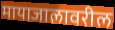
मायाजालावरील